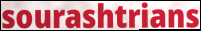
sourashtrians